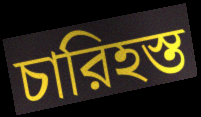
চারিহস্ত